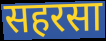
सहरसा